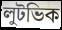
লুটভিক